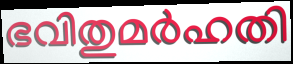
ഭവിതുമർഹതി